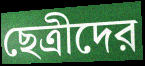
ছেত্রীদের